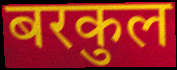
बरकुल